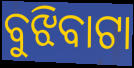
ବୁଝିବାଟା